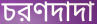
চরণদাদা